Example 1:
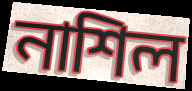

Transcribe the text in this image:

নাশিল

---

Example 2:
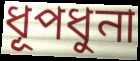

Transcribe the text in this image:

ধূপধুনা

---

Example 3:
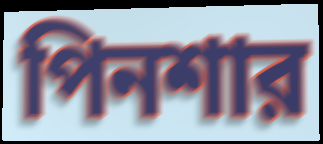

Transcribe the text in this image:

পিনশার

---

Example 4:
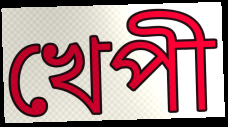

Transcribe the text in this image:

খেপী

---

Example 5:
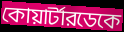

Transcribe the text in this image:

কোয়ার্টারডেকে